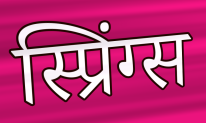
स्प्रिंग्स